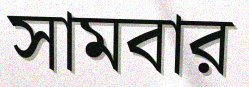
সামবার